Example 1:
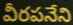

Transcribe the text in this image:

వీరపనేని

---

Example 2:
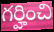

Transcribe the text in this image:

గర్హించి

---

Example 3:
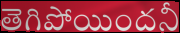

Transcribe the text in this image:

తెగిపోయిందనీ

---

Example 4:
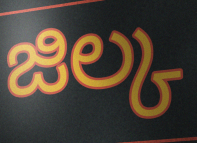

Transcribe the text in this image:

జిల్క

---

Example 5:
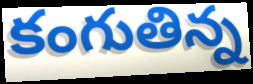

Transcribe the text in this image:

కంగుతిన్న